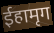
ईहामृग